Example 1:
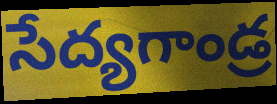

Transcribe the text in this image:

సేద్యగాండ్ర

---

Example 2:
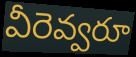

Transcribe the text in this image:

వీరెవ్వరూ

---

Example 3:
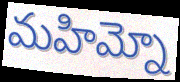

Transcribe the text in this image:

మహిమ్నో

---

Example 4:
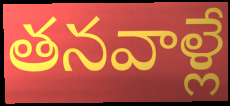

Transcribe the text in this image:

తనవాళ్లే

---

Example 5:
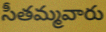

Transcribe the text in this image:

సీతమ్మవారు